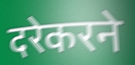
दरेकरने